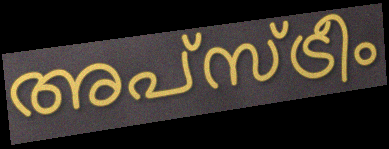
അപ്സ്ട്രീം